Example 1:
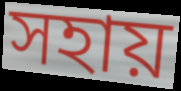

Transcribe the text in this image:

সহায়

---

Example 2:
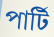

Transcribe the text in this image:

পাৰ্টি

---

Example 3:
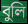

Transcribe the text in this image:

বুলি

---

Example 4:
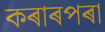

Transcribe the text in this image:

কৰাৰপৰা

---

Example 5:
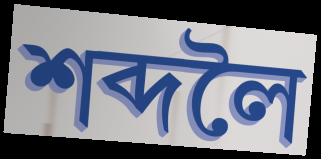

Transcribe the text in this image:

শব্দলৈ